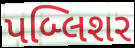
પબ્લિશર